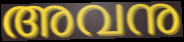
അവനു